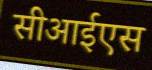
सीआईएस